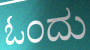
ಓಂದು